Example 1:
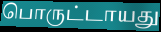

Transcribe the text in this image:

பொருட்டாயது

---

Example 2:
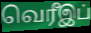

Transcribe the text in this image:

வெரீஇப்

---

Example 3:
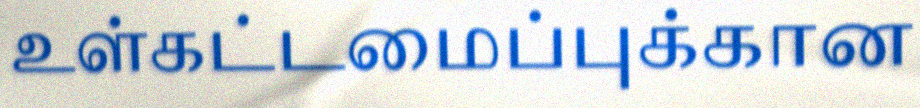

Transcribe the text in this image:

உள்கட்டமைப்புக்கான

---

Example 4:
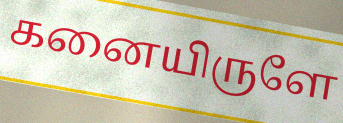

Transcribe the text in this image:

கனையிருளே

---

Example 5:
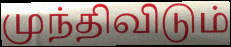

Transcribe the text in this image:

முந்திவிடும்